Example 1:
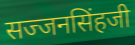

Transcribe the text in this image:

सज्जनसिंहजी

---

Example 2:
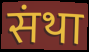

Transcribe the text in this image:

संथा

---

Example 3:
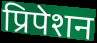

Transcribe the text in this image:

प्रिपेशन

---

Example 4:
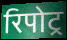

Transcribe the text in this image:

रिपोट्र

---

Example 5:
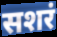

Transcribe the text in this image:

सशरं